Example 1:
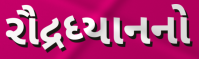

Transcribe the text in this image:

રૌદ્રધ્યાનનો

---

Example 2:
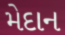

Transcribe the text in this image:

મેદાન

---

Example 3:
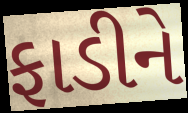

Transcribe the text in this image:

ફાડીને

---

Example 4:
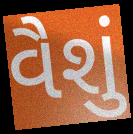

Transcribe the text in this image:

વૈશું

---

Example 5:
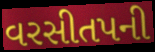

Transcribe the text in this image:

વરસીતપની